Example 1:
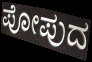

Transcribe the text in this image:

ಪೋಪುದ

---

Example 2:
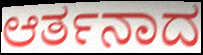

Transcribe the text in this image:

ಆರ್ತನಾದ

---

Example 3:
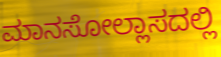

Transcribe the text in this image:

ಮಾನಸೋಲ್ಲಾಸದಲ್ಲಿ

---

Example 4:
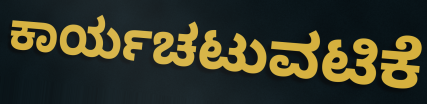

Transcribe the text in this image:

ಕಾರ್ಯಚಟುವಟಿಕೆ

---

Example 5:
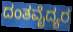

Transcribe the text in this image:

ದಂತವೈದ್ಯರ